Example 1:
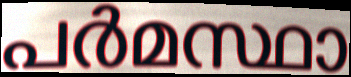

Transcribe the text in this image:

പർമസ്ഥാ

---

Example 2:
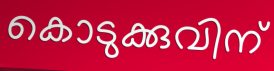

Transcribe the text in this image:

കൊടുക്കുവിന്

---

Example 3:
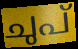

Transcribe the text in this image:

ചുപ്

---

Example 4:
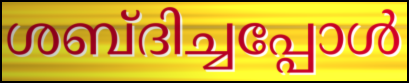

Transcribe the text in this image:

ശബ്ദിച്ചപ്പോൾ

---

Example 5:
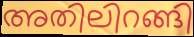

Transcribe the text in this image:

അതിലിറങ്ങി